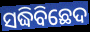
ସଦ୍ଧିବିଛେଦ